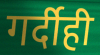
गर्दीही